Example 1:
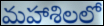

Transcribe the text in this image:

మహాశిలలో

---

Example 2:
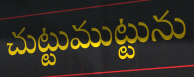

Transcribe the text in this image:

చుట్టుముట్టును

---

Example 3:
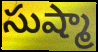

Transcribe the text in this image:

సుష్మా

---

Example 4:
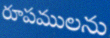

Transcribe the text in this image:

రూపములను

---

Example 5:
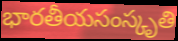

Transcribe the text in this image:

భారతీయసంస్కృతి